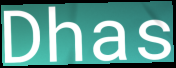
Dhas